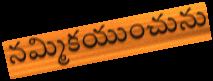
నమ్మికయుంచును